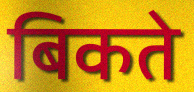
बिकते